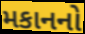
મકાનનો